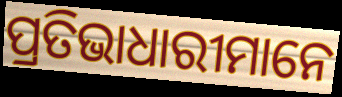
ପ୍ରତିଭାଧାରୀମାନେ